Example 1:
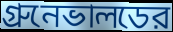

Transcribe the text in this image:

গ্রুনেভালডের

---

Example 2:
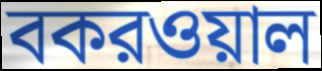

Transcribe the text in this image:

বকরওয়াল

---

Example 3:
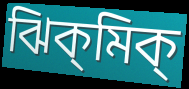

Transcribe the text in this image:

ঝিক্‌মিক্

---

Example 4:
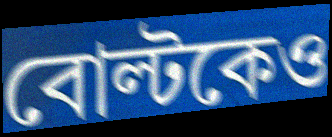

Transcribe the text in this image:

বোল্টকেও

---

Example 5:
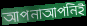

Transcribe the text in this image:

আপনাআপনিই